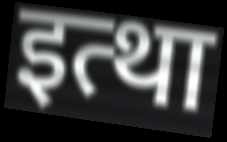
इत्था